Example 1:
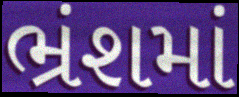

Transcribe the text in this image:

ભ્રંશમાં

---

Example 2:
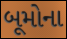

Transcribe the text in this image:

બૂમોના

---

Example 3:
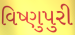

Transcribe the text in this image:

વિષ્ણુપુરી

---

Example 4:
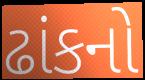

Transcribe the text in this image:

ઢાંકનો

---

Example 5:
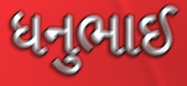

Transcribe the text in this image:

ધનુભાઈ